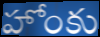
హోంకు